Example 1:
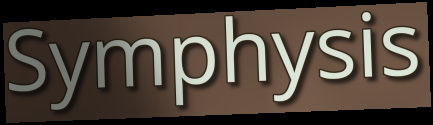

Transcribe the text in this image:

Symphysis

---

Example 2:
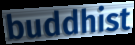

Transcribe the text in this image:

buddhist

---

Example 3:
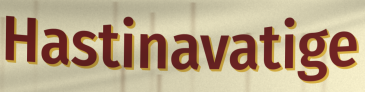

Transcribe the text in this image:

Hastinavatige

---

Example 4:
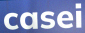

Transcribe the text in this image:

casei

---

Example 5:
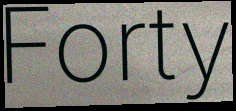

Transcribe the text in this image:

Forty